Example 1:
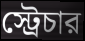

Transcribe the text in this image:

স্ট্রেচার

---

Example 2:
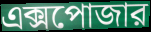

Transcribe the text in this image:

এক্সপোজার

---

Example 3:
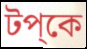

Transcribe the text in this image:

টপ্কে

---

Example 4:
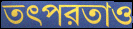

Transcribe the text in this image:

তৎপরতাও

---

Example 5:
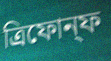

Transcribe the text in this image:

ত্রিফোন্ফ